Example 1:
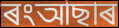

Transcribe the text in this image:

ৰংআছাৰ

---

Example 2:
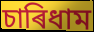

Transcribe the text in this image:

চাৰিধাম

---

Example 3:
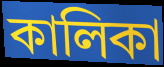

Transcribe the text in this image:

কালিকা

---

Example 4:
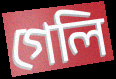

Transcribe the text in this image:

গেলি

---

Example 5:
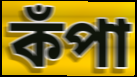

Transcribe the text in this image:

কঁপা